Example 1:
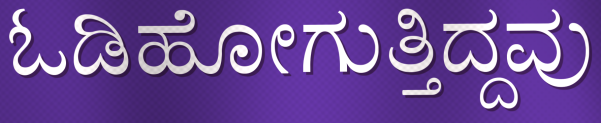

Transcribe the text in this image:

ಓಡಿಹೋಗುತ್ತಿದ್ದವು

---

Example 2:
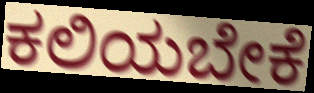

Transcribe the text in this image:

ಕಲಿಯಬೇಕೆ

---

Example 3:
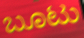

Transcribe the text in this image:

ಬೂಟು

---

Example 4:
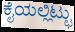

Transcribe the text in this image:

ಕೈಯಲ್ಲಿಟ್ಟು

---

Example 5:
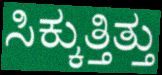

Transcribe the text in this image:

ಸಿಕ್ಕುತ್ತಿತ್ತು